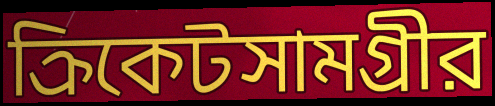
ক্রিকেটসামগ্রীর